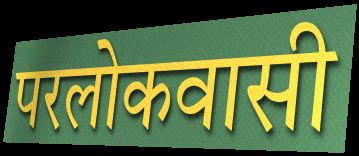
परलोकवासी